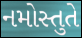
નમોસ્તુતે